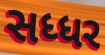
સધ્ધર